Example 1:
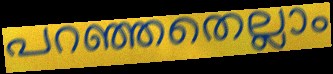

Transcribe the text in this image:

പറഞ്ഞതെല്ലാം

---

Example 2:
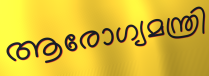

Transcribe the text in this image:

ആരോഗ്യമന്ത്രി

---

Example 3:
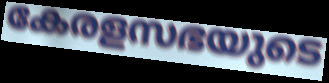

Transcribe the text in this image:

കേരളസഭയുടെ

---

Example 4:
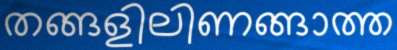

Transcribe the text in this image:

തങ്ങളിലിണങ്ങാത്ത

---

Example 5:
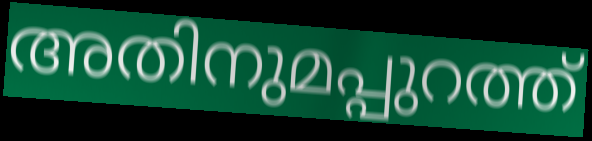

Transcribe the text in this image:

അതിനുമപ്പുറത്ത്